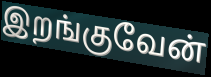
இறங்குவேன்